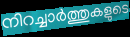
നിറച്ചാർത്തുകളുടെ